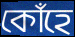
কোঁহে